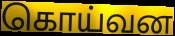
கொய்வன